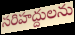
సరిహద్దులను